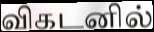
விகடனில்